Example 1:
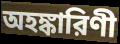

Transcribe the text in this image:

অহঙ্কারিণী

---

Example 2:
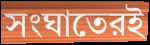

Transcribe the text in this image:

সংঘাতেরই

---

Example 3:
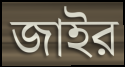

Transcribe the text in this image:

জাইর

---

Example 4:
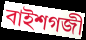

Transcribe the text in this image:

বাইশগজী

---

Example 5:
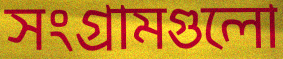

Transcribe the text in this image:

সংগ্রামগুলো